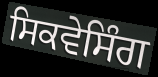
ਸਿਕਵੇਸਿੰਗ